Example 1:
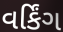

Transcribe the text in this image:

વર્કિંગ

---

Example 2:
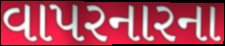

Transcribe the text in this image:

વાપરનારના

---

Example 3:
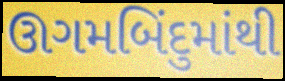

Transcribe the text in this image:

ઊગમબિંદુમાંથી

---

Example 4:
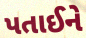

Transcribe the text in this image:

પતાઈને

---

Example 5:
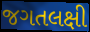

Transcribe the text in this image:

જગતલક્ષી